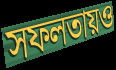
সফলতায়ও